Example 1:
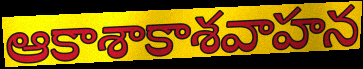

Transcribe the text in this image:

ఆకాశాకాశవాహన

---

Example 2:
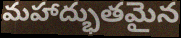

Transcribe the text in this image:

మహాద్భుతమైన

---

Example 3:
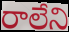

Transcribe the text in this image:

రాలేని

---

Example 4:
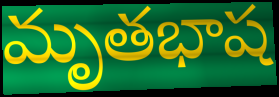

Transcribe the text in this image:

మృతభాష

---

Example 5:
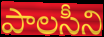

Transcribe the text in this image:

పాలసీని